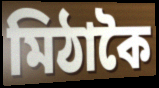
মিঠাকৈ